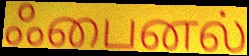
ஃபைனல்